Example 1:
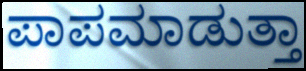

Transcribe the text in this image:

ಪಾಪಮಾಡುತ್ತಾ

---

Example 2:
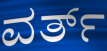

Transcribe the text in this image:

ವರ್ತ್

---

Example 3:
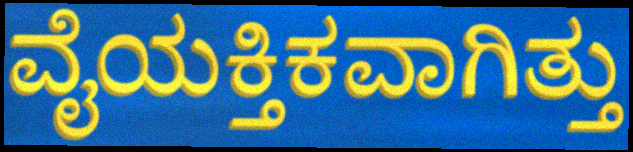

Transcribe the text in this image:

ವೈಯಕ್ತಿಕವಾಗಿತ್ತು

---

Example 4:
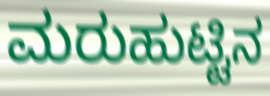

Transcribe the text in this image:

ಮರುಹುಟ್ಟಿನ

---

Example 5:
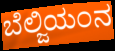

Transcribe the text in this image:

ಬೆಲ್ಜಿಯಂನ